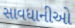
સાવધાનીઓ